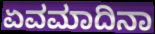
ಏವಮಾದಿನಾ